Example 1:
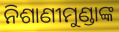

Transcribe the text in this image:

ନିଶାଣୀମୁଣ୍ଡାଙ୍କ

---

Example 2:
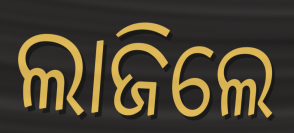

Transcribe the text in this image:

ଲାଜିଲେ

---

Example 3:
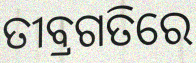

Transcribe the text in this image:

ତୀବ୍ରଗତିରେ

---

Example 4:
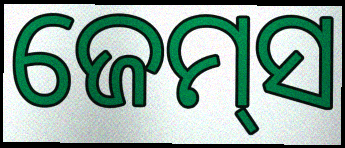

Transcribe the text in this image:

ଜେମ୍‌ସ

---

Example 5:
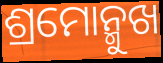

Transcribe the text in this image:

ଶ୍ରମୋନ୍ମୁଖ